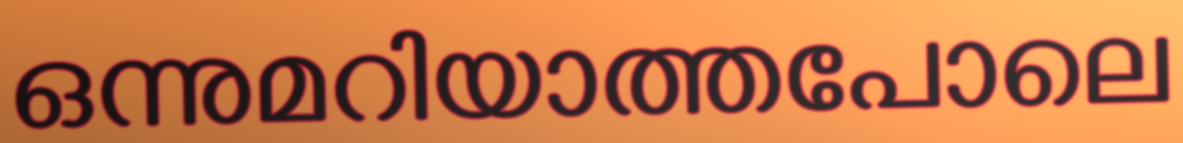
ഒന്നുമറിയാത്തപോലെ